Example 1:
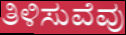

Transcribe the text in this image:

ತಿಳಿಸುವೆವು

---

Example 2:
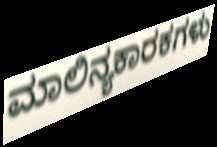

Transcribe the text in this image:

ಮಾಲಿನ್ಯಕಾರಕಗಳು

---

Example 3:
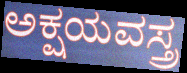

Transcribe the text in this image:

ಅಕ್ಷಯವಸ್ತ್ರ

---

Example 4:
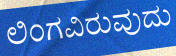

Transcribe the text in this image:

ಲಿಂಗವಿರುವುದು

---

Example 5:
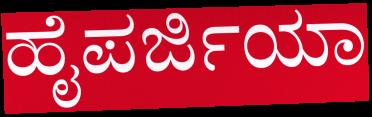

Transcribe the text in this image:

ಹೈಪರ್ಜಿಯಾ